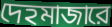
দেহমাজারে